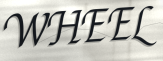
WHEEL